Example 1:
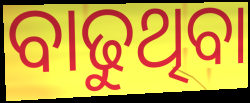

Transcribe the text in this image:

ବାଢୁଥିବା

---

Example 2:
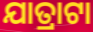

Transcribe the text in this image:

ଯାତ୍ରାଟା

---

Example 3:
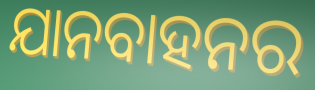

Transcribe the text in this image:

ଯାନବାହନର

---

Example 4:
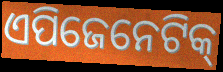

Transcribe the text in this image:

ଏପିଜେନେଟିକ୍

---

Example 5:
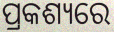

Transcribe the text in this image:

ପ୍ରକଶ୍ୟରେ